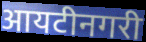
आयटीनगरी